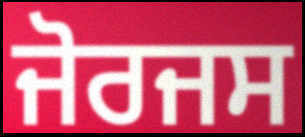
ਜੋਰਜਸ